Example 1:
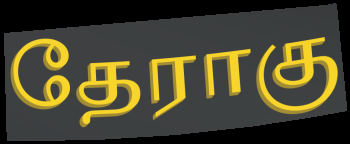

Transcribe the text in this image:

தேராகு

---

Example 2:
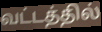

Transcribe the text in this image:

வட்டத்தில்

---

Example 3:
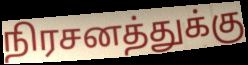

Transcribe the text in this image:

நிரசனத்துக்கு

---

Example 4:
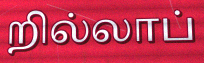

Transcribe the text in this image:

றில்லாப்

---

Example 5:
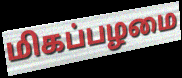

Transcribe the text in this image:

மிகப்பழமை